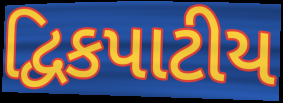
દ્વિકપાટીય